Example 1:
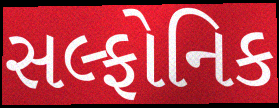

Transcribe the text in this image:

સલ્ફોનિક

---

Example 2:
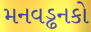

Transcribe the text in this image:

મનવડ્ઢનકો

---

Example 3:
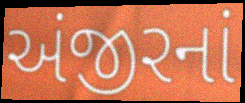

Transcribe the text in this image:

અંજીરનાં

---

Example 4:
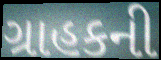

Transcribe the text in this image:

ગ્રાહકની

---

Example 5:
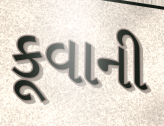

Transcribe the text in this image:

કૂવાની